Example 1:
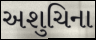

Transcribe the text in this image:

અશુચિના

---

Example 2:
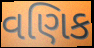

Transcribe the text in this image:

વણિક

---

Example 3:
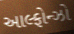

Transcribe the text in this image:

આલ્ફોન્ઝો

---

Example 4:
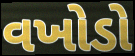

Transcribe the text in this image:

વખોડો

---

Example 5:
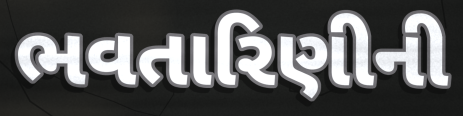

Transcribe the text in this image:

ભવતારિણીની